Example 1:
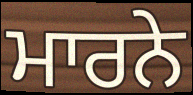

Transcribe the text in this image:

ਮਾਰਨੇ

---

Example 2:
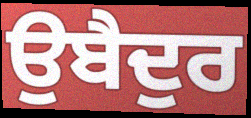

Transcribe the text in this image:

ਉਬੈਦੁਰ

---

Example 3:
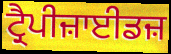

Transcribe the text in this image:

ਟ੍ਰੈਪੀਜ਼ਾਈਡਜ਼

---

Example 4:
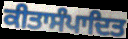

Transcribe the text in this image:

ਕੀਤਾਸੰਪਾਦਿਤ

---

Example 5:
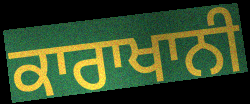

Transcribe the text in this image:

ਕਾਰਾਖਾਨੀ